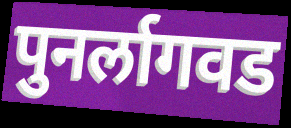
पुनर्लागवड